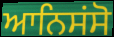
ਆਨਿਸਂਸੋ